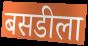
बसडीला